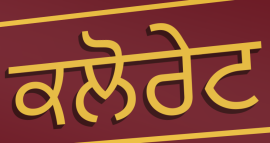
ਕਲੋਰੇਟ